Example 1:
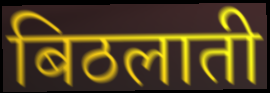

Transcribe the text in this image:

बिठलाती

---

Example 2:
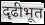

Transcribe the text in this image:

दृढीभूत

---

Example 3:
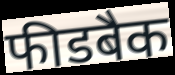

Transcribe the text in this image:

फीडबैक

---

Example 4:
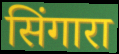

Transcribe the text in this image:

सिंगारा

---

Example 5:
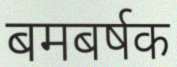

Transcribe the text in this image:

बमबर्षक